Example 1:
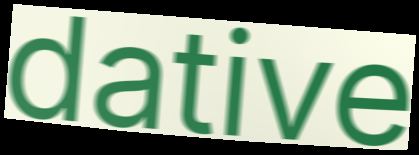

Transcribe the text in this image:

dative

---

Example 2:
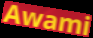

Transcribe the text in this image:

Awami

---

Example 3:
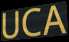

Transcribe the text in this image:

UCA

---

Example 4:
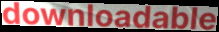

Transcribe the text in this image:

downloadable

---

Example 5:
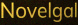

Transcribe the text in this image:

Novelgal